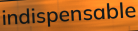
indispensable